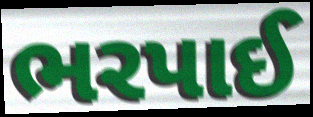
ભરપાઈ